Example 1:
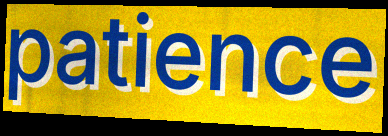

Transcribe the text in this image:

patience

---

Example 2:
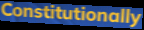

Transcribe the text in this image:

Constitutionally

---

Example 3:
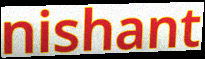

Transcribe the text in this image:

nishant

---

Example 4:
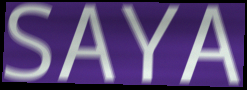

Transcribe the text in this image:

SAYA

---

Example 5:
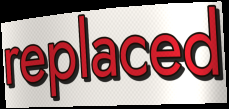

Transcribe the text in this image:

replaced